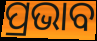
ପ୍ରଭାବ